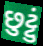
છુટ્ટું